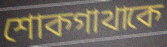
শোকগাথাকে